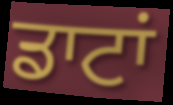
ਡਾਟਾਂ